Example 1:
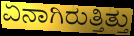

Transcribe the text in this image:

ಏನಾಗಿರುತ್ತಿತ್ತು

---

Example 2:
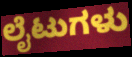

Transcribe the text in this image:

ಲೈಟುಗಳು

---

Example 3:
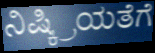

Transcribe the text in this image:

ನಿಷ್ಕ್ರಿಯತೆಗೆ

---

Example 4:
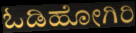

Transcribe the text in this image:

ಓಡಿಹೋಗಿರಿ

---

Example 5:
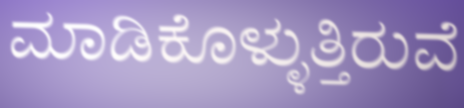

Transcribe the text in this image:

ಮಾಡಿಕೊಳ್ಳುತ್ತಿರುವೆ